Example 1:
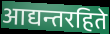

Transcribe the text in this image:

आद्यन्तरहिते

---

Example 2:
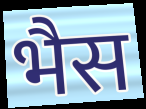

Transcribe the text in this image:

भैस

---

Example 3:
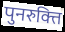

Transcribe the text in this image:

पुनरुक्ति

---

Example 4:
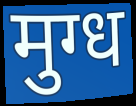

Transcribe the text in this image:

मुग्ध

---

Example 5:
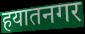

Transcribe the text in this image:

हयातनगर